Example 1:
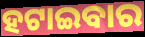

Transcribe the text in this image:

ହଟାଇବାର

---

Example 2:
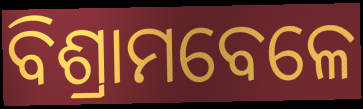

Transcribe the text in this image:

ବିଶ୍ରାମବେଳେ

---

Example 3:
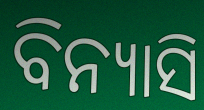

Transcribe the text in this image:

ବିନ୍ୟାସି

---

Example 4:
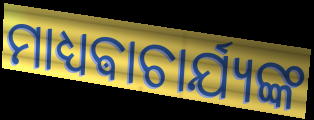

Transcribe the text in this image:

ମାଧ୍ୟଵାଚାର୍ଯ୍ୟଙ୍କ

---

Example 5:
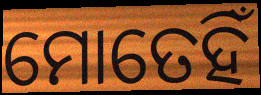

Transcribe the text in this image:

ମୋତେହିଁ